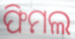
ଫିମଲ